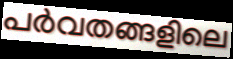
പർവതങ്ങളിലെ